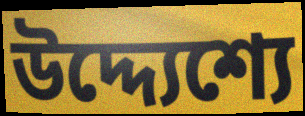
উদ্দ্যেশ্যে